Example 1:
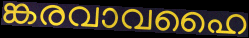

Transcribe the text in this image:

ങ്കരവാവഹൈ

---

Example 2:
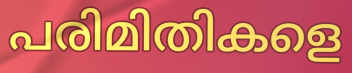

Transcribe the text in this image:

പരിമിതികളെ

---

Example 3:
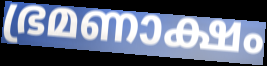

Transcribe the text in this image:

ഭ്രമണാക്ഷം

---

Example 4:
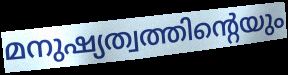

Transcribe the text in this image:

മനുഷ്യത്വത്തിന്റെയും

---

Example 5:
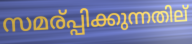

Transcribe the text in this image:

സമര്പ്പിക്കുന്നതില്